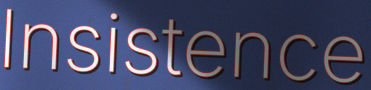
Insistence